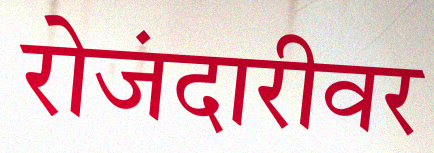
रोजंदारीवर